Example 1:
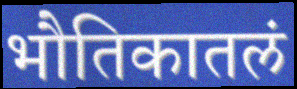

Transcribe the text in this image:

भौतिकातलं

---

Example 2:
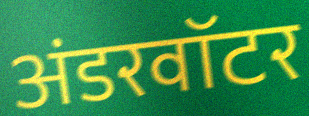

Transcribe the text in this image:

अंडरवॉटर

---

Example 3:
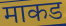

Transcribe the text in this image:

माकड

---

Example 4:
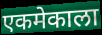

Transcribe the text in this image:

एकमेकाला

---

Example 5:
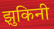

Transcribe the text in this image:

झुकिनी